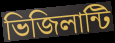
ভিজিলান্টি